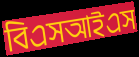
বিএসআইএস